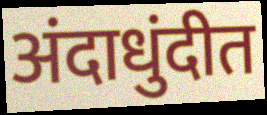
अंदाधुंदीत